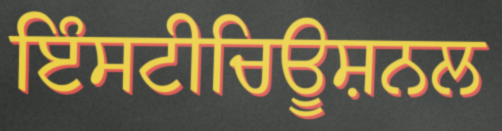
ਇੰਸਟੀਚਿਊਸ਼ਨਲ